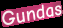
Gundas